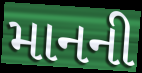
માનની